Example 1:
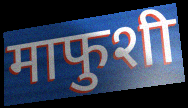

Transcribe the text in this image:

माफुशी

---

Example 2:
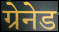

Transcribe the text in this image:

ग्रेनेड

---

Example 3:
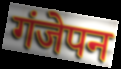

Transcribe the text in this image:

गंजेपन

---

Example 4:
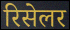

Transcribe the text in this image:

रिसेलर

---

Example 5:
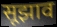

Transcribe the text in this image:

सूझाव